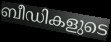
ബീഡികളുടെ